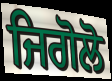
ਜਿਗੋਲੋ